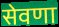
सेवणा